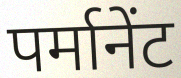
पर्मानेंट